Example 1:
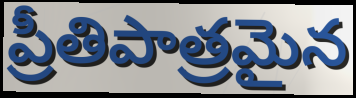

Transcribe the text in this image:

ప్రీతిపాత్రమైన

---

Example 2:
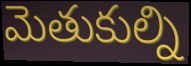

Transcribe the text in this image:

మెతుకుల్ని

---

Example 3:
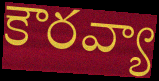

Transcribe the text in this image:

కౌరవ్యా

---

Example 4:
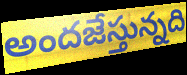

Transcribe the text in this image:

అందజేస్తున్నది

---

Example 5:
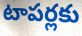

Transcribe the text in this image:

టాపర్లకు